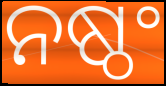
ନଷ୍ଠଂ